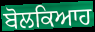
ਬੋਲਕਿਆਹ